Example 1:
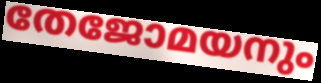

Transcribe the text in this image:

തേജോമയനും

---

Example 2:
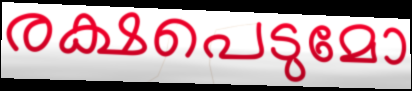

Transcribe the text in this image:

രക്ഷപെടുമോ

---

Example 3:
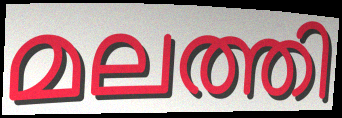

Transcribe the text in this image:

മലത്തി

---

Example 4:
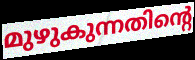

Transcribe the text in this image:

മുഴുകുന്നതിന്റെ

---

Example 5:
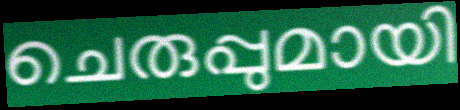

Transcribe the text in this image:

ചെരുപ്പുമായി